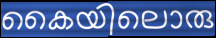
കൈയിലൊരു